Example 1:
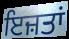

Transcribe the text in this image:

ਇਜ਼ਤਾਂ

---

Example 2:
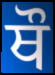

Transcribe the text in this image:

ਥੌ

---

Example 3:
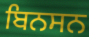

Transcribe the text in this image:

ਬਿਨਸਨ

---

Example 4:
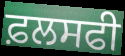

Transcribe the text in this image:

ਫ਼ਲਸਫੀ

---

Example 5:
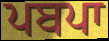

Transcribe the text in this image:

ਪਬਪਾ